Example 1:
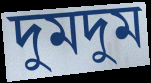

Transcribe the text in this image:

দুমদুম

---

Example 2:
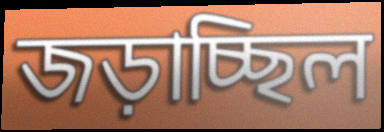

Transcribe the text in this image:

জড়াচ্ছিল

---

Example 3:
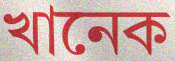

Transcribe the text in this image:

খানেক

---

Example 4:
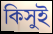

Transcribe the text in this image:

কিসুই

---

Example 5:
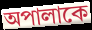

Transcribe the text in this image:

অপালাকে